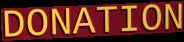
DONATION